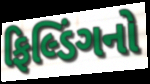
ફિલ્ડિંગનો